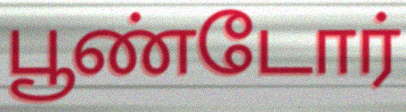
பூண்டோர்